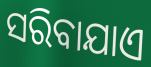
ସରିବାଯାଏ